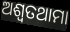
ଅଶ୍ୱତଥାମା